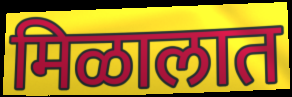
मिळालात